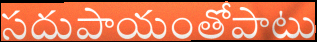
సదుపాయంతోపాటు